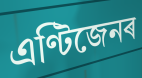
এণ্টিজেনৰ